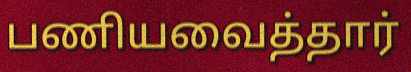
பணியவைத்தார்